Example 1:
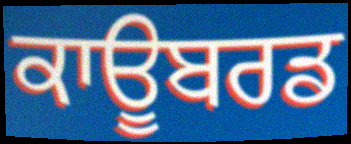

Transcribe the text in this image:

ਕਾਊਬਰਡ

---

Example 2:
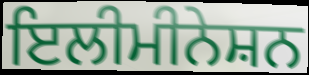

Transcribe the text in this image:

ਇਲੀਮੀਨੇਸ਼ਨ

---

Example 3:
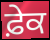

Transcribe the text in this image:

ਫ਼ੇਕ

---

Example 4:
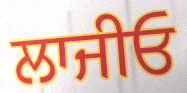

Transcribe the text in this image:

ਲਾਜੀਓ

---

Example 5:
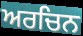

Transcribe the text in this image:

ਅਰਚਿਨ